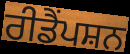
ਰੀਡੈਂਪਸ਼ਨ